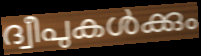
ദ്വീപുകൾക്കും